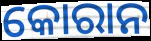
କୋରାନ